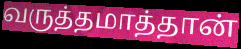
வருத்தமாத்தான்